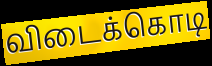
விடைக்கொடி